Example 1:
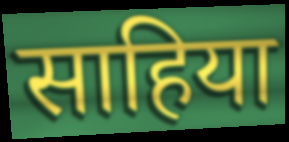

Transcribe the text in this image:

साहिया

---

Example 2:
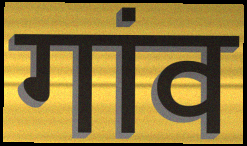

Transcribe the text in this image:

गांव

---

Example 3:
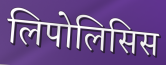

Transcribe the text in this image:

लिपोलिसिस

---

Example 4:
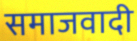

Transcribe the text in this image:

समाजवादी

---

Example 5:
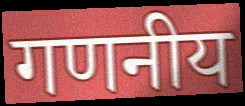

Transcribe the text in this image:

गणनीय